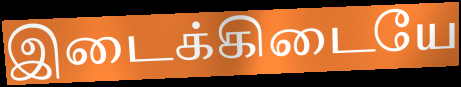
இடைக்கிடையே